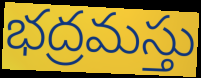
భద్రమస్తు